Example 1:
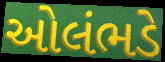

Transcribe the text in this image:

ઓલંભડે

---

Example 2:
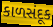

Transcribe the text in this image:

કાળસંદૂક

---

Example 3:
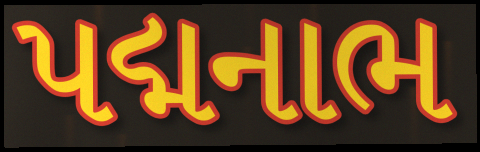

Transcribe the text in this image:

પદ્મનાભ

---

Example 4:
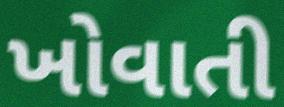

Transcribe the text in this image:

ખોવાતી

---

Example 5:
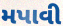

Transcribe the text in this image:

મપાવી